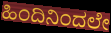
ಹಿಂದಿನಿಂದಲೇ